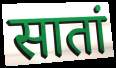
सातां